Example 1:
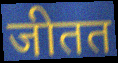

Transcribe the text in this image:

जीतत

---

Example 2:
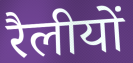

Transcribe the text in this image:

रैलीयों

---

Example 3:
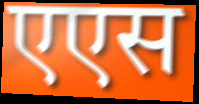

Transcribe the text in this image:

एएस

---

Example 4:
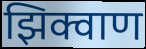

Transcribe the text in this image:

झिक्वाण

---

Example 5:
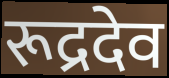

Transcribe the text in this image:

रूद्रदेव